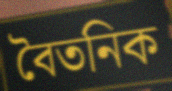
বৈতনিক